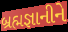
બ્રહ્મજ્ઞાનીને